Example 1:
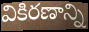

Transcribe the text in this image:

వికిరణాన్ని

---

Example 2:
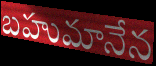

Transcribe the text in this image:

బహుమానేన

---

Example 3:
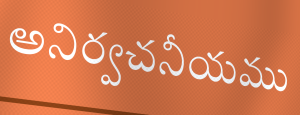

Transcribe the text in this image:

అనిర్వచనీయము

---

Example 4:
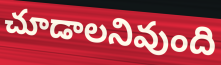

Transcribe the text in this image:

చూడాలనివుంది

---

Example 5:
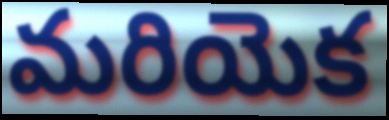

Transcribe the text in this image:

మరియెక